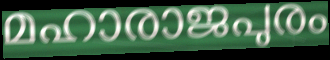
മഹാരാജപുരം